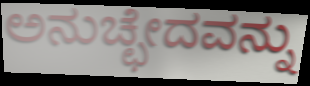
ಅನುಚ್ಛೇದವನ್ನು